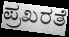
ಪ್ರಖರತೆ